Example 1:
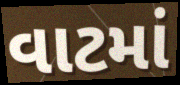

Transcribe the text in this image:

વાટમાં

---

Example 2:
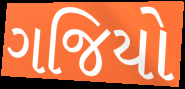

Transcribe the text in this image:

ગજિયો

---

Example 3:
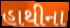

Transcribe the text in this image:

હાથીના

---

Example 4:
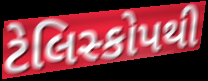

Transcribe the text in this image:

ટેલિસ્કોપથી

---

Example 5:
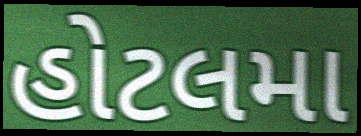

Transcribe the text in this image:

હોટલમા